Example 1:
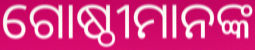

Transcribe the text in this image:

ଗୋଷ୍ଠୀମାନଙ୍କ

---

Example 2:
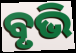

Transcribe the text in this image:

ବୃଭି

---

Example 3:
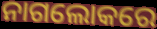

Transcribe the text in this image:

ନାଗଲୋକରେ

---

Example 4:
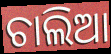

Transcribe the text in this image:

ଚାଲିଆ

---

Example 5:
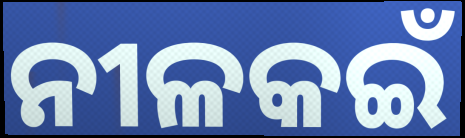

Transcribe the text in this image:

ନୀଳକଇଁ